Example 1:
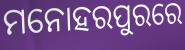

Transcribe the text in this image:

ମନୋହରପୁରରେ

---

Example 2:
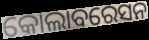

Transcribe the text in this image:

କୋଲାବରେସନ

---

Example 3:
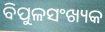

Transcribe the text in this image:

ବିପୁଳସଂଖ୍ୟକ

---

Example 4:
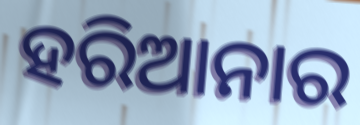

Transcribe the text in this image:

ହରିଆନାର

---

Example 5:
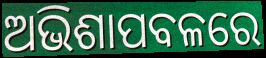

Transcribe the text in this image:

ଅଭିଶାପବଳରେ